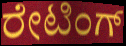
ರೇಟಿಂಗ್